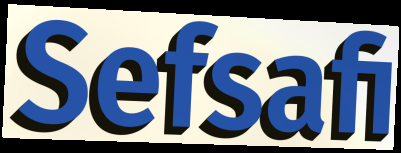
Sefsafi